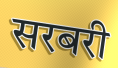
सरबरी